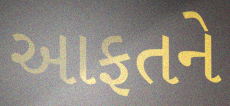
આફતને